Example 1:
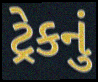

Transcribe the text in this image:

ટ્રેકનું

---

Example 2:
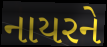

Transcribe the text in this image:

નાયરને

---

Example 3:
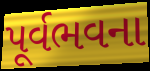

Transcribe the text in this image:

પૂર્વભવના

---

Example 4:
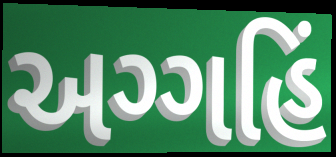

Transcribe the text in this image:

અગ્ગહિં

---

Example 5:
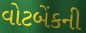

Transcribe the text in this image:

વોટબેંકની